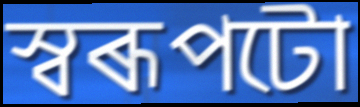
স্বৰূপটো